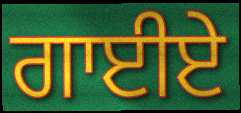
ਗਾਈਏ